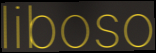
liboso